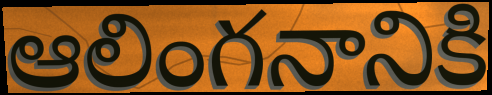
ఆలింగనానికి